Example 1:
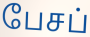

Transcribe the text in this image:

பேசப்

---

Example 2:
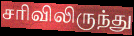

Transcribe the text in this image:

சரிவிலிருந்து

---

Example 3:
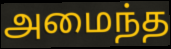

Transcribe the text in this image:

அமைந்த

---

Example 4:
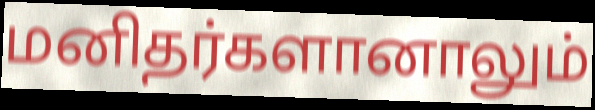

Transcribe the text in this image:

மனிதர்களானாலும்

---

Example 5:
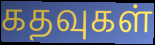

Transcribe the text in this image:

கதவுகள்